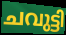
ചവുട്ടി